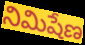
నిమిషేణ